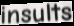
insults